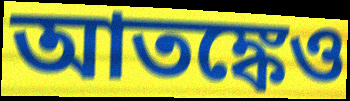
আতঙ্কেও